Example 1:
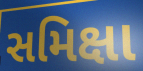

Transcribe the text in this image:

સમિક્ષા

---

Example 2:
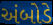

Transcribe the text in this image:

અંબોડે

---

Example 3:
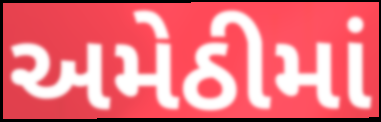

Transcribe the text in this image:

અમેઠીમાં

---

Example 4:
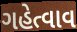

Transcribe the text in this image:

ગહેત્વાવ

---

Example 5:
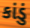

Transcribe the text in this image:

કાંડું